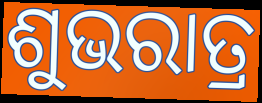
ଶୁଭରାତ୍ର